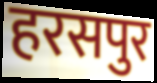
हरसपुर